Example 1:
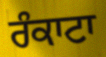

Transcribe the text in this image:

ਰੰਕਾਟਾ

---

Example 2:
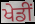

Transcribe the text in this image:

ਖੇਡੀਂ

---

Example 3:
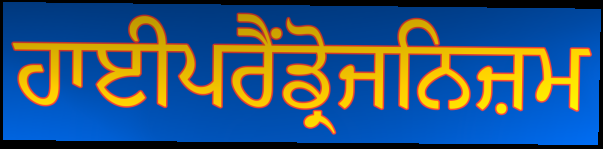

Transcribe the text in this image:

ਹਾਈਪਰੈਂਡ੍ਰੋਜਨਿਜ਼ਮ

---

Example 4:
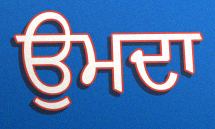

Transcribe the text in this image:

ਉਮਦਾ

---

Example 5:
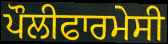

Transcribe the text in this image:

ਪੌਲੀਫਾਰਮੇਸੀ